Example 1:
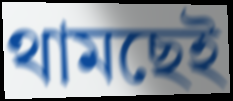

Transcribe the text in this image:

থামছেই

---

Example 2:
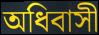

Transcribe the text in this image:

অধিবাসী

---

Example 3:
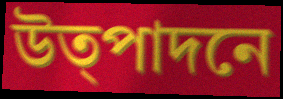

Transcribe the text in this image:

উত্পাদনে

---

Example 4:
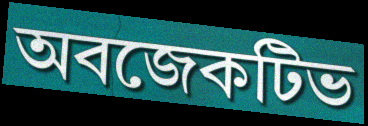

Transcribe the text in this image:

অবজেকটিভ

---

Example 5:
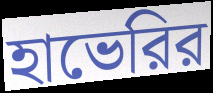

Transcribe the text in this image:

হাভেরির